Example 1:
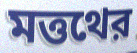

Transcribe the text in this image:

মত্তথের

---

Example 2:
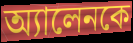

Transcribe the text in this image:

অ্যালেনকে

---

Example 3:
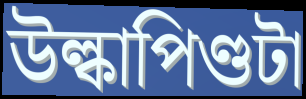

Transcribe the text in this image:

উল্কাপিণ্ডটা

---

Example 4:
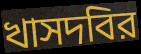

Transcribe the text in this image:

খাসদবির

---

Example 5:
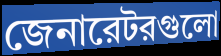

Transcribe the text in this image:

জেনারেটরগুলো